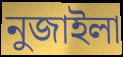
নুজাইলা